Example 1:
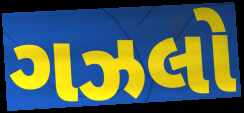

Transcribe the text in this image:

ગઝલો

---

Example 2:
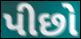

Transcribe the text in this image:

પીછો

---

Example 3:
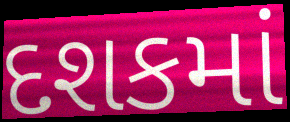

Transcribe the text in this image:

દશકમાં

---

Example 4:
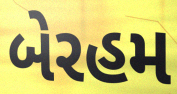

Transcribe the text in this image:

બેરહમ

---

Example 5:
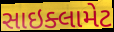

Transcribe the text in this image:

સાઇક્લામેટ